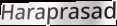
Haraprasad